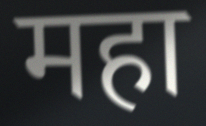
महा